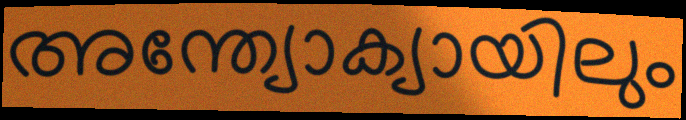
അന്ത്യോക്യായിലും